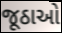
જૂઠાઓ